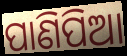
ପାଣିପିଆ